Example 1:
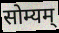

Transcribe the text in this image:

सोम्यम्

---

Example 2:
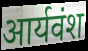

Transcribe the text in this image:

आर्यवंश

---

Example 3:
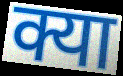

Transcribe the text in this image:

क्या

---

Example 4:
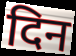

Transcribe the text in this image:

दिन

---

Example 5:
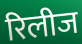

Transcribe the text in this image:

रिलीज